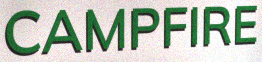
CAMPFIRE